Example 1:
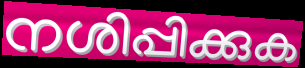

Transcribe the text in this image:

നശിപ്പിക്കുക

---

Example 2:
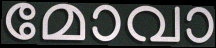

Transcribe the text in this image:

മോവാ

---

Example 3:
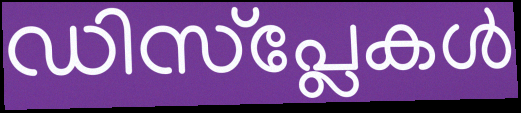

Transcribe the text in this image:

ഡിസ്പ്ലേകൾ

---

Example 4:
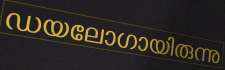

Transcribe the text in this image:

ഡയലോഗായിരുന്നു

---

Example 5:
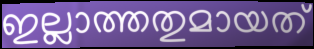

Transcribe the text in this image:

ഇല്ലാത്തതുമായത്